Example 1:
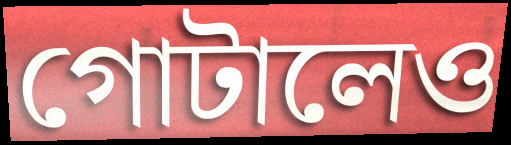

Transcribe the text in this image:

গোটালেও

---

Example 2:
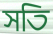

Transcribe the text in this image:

সতি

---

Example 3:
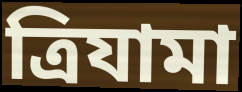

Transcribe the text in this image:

ত্রিযামা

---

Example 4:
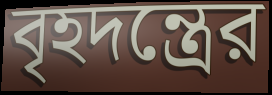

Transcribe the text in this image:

বৃহদন্ত্রের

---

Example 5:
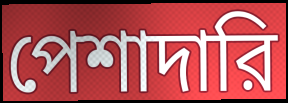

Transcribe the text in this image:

পেশাদারি